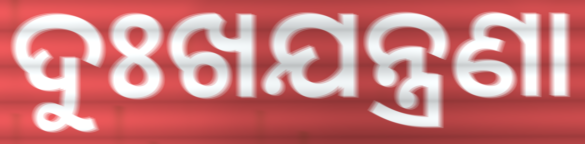
ଦୁଃଖଯନ୍ତ୍ରଣା